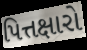
પિત્તક્ષારો